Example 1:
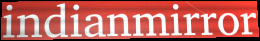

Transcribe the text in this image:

indianmirror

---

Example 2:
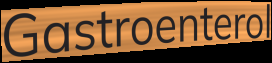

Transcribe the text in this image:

Gastroenterol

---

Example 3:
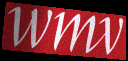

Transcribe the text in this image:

wmv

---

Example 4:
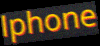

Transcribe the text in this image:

Iphone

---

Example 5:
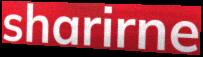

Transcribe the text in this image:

sharirne